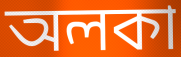
অলকা